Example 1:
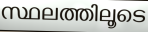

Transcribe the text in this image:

സ്ഥലത്തിലൂടെ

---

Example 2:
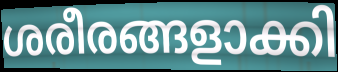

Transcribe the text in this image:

ശരീരങ്ങളാക്കി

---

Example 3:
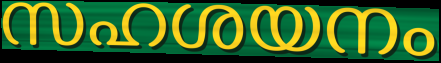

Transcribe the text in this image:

സഹശയനം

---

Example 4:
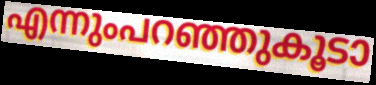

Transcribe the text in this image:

എന്നുംപറഞ്ഞുകൂടാ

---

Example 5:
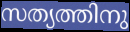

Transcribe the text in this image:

സത്യത്തിനു